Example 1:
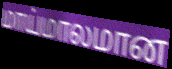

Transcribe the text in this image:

மாய்மாலமான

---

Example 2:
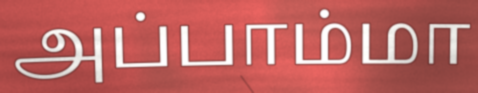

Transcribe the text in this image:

அப்பாம்மா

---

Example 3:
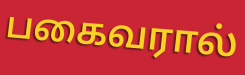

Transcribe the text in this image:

பகைவரால்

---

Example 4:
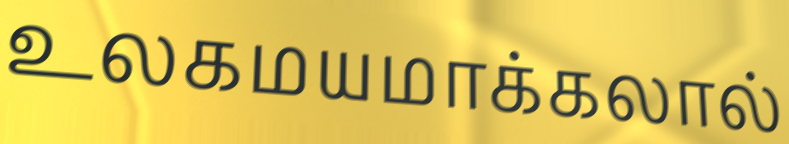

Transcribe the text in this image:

உலகமயமாக்கலால்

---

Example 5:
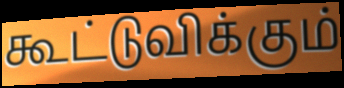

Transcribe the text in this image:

கூட்டுவிக்கும்